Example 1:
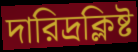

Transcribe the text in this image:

দারিদ্রক্লিষ্ট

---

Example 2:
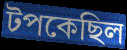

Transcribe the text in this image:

টপকেছিল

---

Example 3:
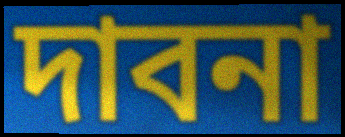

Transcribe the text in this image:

দাবনা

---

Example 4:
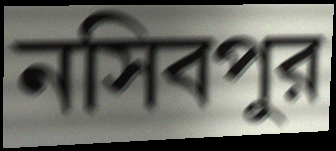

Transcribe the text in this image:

নসিবপুর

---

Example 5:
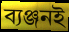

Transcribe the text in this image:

ব্যঞ্জনই